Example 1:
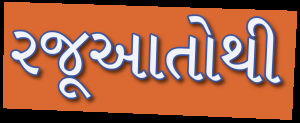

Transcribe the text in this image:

રજૂઆતોથી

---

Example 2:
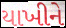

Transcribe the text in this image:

યાખીને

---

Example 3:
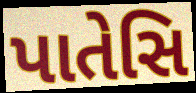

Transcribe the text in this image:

પાતેસિ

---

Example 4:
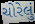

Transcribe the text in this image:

ચોરેલું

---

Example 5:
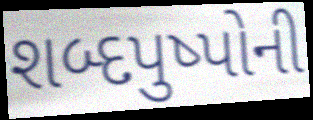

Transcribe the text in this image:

શબ્દપુષ્પોની